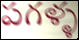
పగళ్ళ